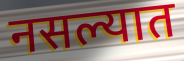
नसल्यात